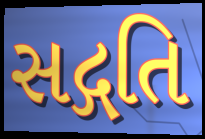
સદ્ગતિ